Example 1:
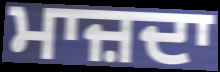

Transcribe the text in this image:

ਮਾਜ਼ਦਾ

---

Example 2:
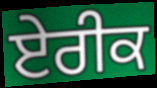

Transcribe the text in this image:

ਏਰੀਕ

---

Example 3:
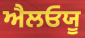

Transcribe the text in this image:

ਐਲਓਯੂ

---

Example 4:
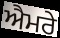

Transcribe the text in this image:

ਐਮਰੇ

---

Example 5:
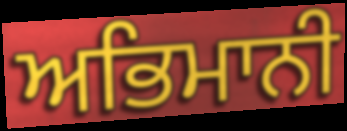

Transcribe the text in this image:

ਅਭਿਮਾਨੀ